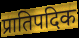
प्रातिपदिक